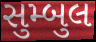
સુમ્બુલ